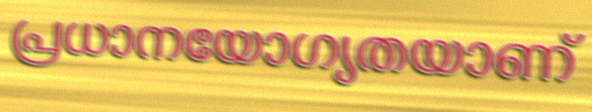
പ്രധാനയോഗ്യതയാണ്